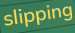
slipping